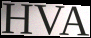
HVA